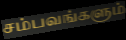
சம்பவங்களும்